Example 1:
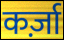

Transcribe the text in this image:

कर्ज़ा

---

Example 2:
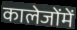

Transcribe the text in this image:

कालेजोंमें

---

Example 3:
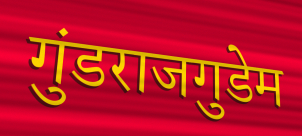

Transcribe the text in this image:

गुंडराजगुडेम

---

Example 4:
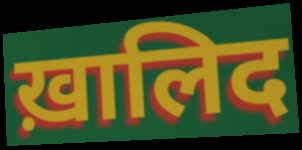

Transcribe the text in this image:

ख़ालिद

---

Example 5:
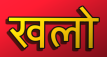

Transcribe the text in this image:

खलो